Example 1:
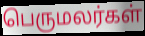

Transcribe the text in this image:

பெருமலர்கள்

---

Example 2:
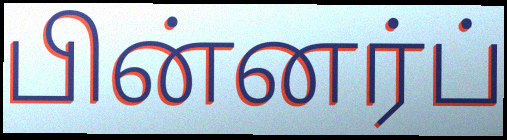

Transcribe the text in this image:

பின்னர்ப்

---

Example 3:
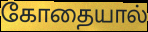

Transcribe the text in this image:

கோதையால்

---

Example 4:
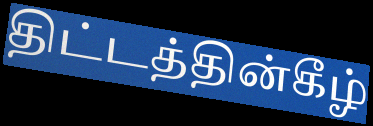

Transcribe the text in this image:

திட்டத்தின்கீழ்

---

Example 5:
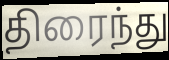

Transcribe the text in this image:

திரைந்து